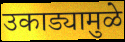
उकाड्यामुळे